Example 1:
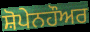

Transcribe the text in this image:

ਸ਼ੋਪੇਨਹੌਅਰ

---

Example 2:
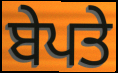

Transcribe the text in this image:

ਬੇਪਤੇ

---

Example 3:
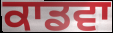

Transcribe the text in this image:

ਕਾਡਵਾ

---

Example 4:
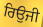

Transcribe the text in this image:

ਰਿਉਜੀ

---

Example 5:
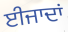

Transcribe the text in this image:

ਈਜਾਦਾਂ